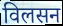
विलसन